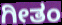
ಗೀತಂ